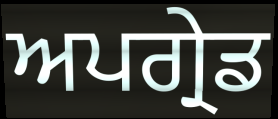
ਅਪਗ੍ਰੇਡ